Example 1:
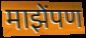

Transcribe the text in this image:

माझेंपण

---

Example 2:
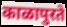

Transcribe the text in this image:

काळापुरते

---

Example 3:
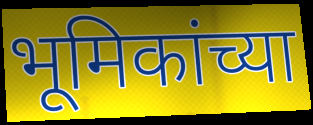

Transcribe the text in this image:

भूमिकांच्या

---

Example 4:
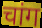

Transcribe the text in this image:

चांग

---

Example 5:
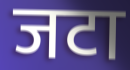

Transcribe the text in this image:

जटा